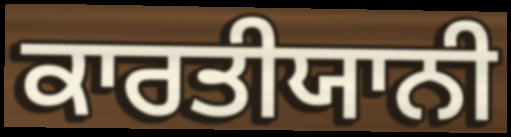
ਕਾਰਤੀਯਾਨੀ